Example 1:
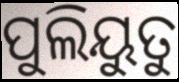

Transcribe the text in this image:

ପୁଲିୟୁତୁ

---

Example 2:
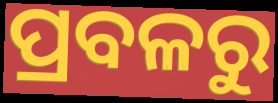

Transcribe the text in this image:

ପ୍ରବଳରୁ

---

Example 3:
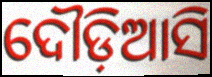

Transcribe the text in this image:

ଦୌଡ଼ିଆସି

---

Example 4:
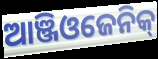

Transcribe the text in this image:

ଆଞ୍ଜିଓଜେନିକ୍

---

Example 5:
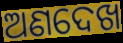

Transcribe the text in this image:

ଅଣଦେଖ